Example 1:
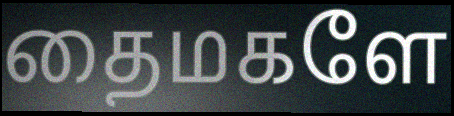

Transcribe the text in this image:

தைமகளே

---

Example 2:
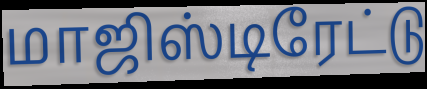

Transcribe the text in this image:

மாஜிஸ்டிரேட்டு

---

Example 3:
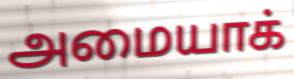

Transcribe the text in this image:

அமையாக்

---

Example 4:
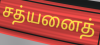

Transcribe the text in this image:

சத்யனைத்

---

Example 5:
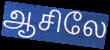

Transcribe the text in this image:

ஆசிலே